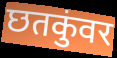
छतकुंवर